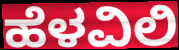
ಹೆಳವಿಲಿ